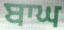
ਬਾਘ